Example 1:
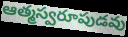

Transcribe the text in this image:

ఆత్మస్వరూపుడవు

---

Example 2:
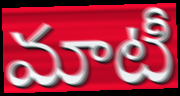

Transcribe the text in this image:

మాటీ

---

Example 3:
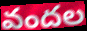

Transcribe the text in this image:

వందల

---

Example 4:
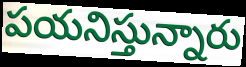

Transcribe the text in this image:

పయనిస్తున్నారు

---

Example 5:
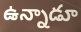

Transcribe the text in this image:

ఉన్నాడూ